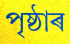
পৃষ্ঠাৰ